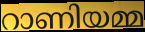
റാണിയമ്മ